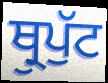
ਥ੍ਰੁਪੁੱਟ